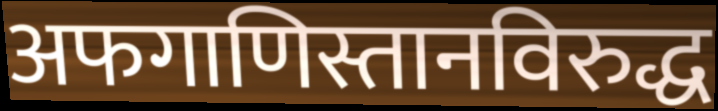
अफगाणिस्तानविरुद्ध